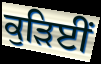
ਕੁੜਿਈਂ